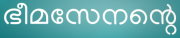
ഭീമസേനന്റെ